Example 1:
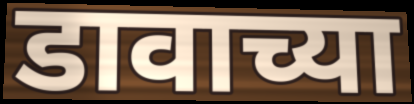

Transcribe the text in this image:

डावाच्या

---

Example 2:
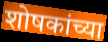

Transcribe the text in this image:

शोषकांच्या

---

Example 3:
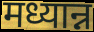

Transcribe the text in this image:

मध्यान्न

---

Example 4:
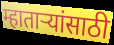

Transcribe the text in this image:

म्हाताऱ्यांसाठी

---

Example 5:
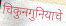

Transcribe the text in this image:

चिकुनगुनियाचे